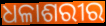
ଧଳାଶରୀର